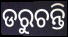
ଡରୁଚନ୍ତି